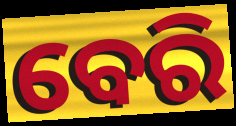
ବେରି